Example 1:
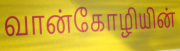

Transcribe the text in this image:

வான்கோழியின்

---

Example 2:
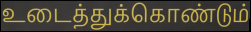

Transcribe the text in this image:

உடைத்துக்கொண்டும்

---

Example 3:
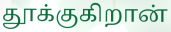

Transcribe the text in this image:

தூக்குகிறான்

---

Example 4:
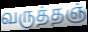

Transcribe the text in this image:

வருத்தஞ்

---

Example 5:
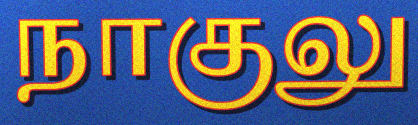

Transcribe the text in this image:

நாகுலு